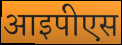
आइपीएस